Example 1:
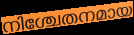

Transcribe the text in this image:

നിശ്ചേതനമായ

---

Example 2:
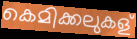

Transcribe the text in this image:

കെമിക്കലുകള്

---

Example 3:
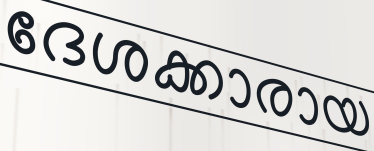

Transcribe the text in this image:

ദേശക്കാരായ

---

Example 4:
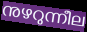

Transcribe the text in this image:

നുഴറുന്നീല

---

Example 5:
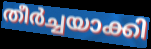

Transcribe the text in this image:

തീർച്ചയാക്കി